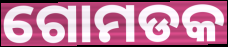
ଗୋମଡକ